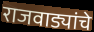
राजवाड्यांचे